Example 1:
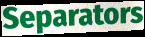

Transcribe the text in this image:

Separators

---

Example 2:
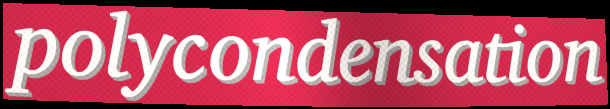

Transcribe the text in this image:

polycondensation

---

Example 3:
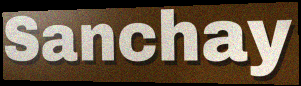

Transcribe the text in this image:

Sanchay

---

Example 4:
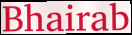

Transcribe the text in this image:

Bhairab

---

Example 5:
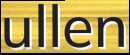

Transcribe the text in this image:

ullen